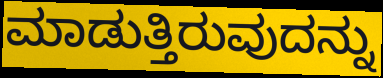
ಮಾಡುತ್ತಿರುವುದನ್ನು